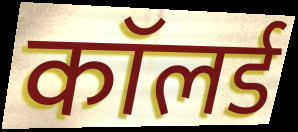
कॉलर्ड